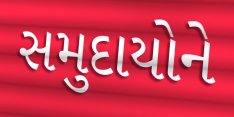
સમુદાયોને